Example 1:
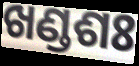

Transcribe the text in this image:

ଖଣ୍ଡଶଃ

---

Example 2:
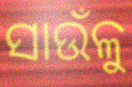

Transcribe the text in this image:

ସାଉଁଳୁ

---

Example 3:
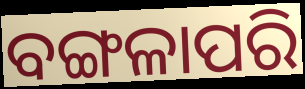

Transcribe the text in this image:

ବଙ୍ଗଳାପରି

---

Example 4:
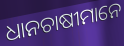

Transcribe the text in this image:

ଧାନଚାଷୀମାନେ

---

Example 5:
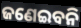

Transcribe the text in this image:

ଜଣେଇବନି